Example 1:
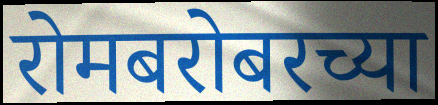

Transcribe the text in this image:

रोमबरोबरच्या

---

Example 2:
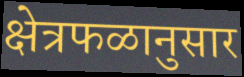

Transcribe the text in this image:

क्षेत्रफळानुसार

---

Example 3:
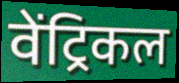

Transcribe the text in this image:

वेंट्रिकल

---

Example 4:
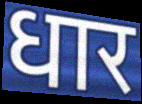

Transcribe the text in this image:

धार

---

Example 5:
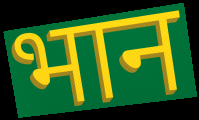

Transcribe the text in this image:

भान